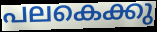
പലകെക്കു